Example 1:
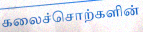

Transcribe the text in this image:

கலைச்சொற்களின்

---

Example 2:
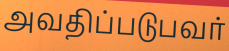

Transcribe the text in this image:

அவதிப்படுபவர்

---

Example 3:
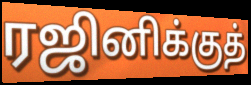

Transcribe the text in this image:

ரஜினிக்குத்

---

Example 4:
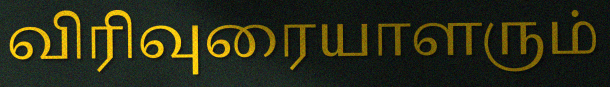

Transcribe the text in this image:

விரிவுரையாளரும்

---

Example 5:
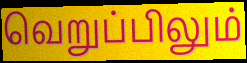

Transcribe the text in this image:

வெறுப்பிலும்